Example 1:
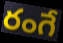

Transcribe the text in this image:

రంగే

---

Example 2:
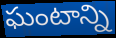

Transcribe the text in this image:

ఘంటాన్ని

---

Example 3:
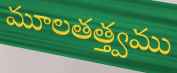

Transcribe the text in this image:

మూలతత్త్వము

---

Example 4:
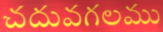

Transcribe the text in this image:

చదువగలము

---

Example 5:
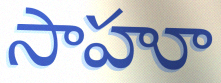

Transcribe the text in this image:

సాహూ